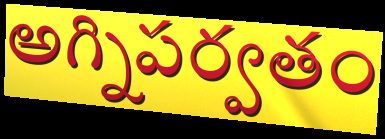
అగ్నిపర్వతం